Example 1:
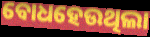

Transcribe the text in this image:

ବୋଧହେଉଥିଲା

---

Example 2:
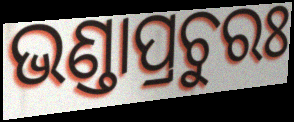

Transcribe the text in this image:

ଭଣ୍ଡାପ୍ରଚୁରଃ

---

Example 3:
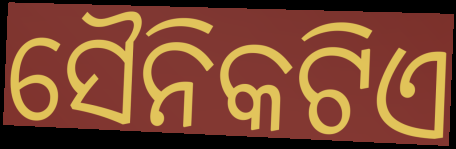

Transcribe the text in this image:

ସୈନିକଟିଏ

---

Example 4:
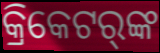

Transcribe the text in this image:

କ୍ରିକେଟର୍‌ଙ୍କ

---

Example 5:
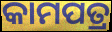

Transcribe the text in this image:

କାମପତ୍ର